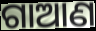
ଗାଆଣ